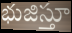
భుజిస్తూ